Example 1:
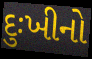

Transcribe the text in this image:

દુઃખીનો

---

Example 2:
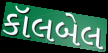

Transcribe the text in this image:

કૉલબેલ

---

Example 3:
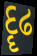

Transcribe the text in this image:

દૄઢ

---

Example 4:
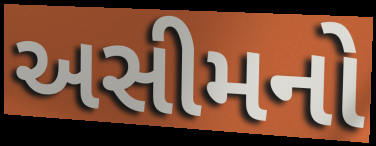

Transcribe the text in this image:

અસીમનો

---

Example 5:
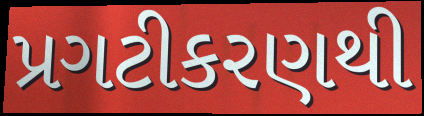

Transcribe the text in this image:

પ્રગટીકરણથી